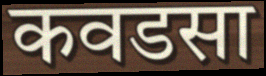
कवडसा